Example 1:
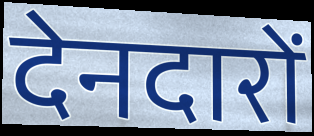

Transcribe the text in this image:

देनदारों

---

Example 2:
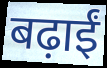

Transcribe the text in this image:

बढ़ाईं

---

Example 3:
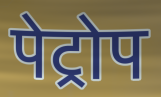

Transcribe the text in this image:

पेट्रोप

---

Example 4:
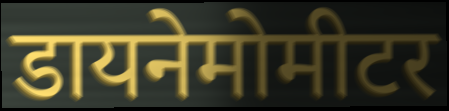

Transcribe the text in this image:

डायनेमोमीटर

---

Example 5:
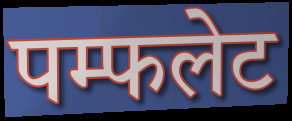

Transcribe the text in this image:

पम्फलेट